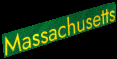
Massachusetts